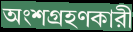
অংশগ্রহণকারী